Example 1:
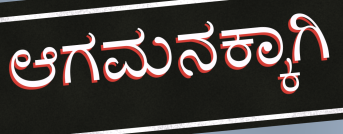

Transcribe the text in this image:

ಆಗಮನಕ್ಕಾಗಿ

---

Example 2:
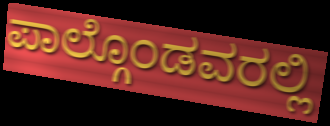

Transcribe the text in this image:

ಪಾಲ್ಗೊಂಡವರಲ್ಲಿ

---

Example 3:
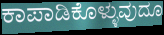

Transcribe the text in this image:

ಕಾಪಾಡಿಕೊಳ್ಳುವುದೂ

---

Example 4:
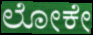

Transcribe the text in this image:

ಲೋಕೇ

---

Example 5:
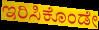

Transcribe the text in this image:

ಇರಿಸಿಕೊಂಡೇ